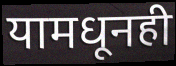
यामधूनही